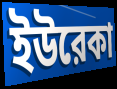
ইউরেকা